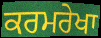
ਕਰਮਰੇਖਾ